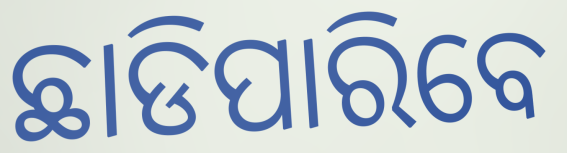
ଛାଡିପାରିବେ